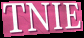
TNIE